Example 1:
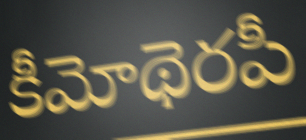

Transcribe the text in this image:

కీమోథెరపీ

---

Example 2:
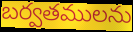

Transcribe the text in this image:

బర్వతములను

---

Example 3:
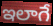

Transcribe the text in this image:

ఇలాగే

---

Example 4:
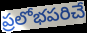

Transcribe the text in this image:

ప్రలోభపరిచే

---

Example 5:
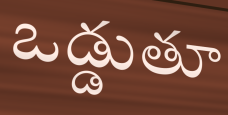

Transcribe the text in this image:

ఒడ్డుతూ